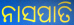
ନାସପାତି